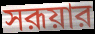
সরূয়ার